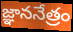
జ్ఞాననేత్రం